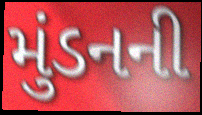
મુંડનની